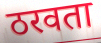
ठरवता